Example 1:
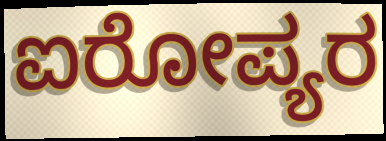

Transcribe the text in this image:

ಐರೋಪ್ಯರ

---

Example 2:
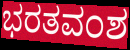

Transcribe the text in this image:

ಭರತವಂಶ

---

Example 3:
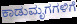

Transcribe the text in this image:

ಕಾಡುಮೃಗಗಳಿಗೆ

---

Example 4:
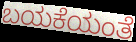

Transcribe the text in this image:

ಬಯಕೆಯಂತೆ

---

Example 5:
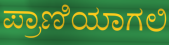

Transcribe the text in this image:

ಪ್ರಾಣಿಯಾಗಲಿ